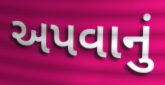
અપવાનું